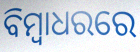
ବିମ୍ୱାଧରରେ